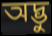
অদ্ভু